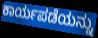
ಕಾರ್ಯಪಡೆಯನ್ನು